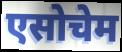
एसोचेम